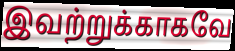
இவற்றுக்காகவே